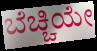
ಬೆಚ್ಚಿಯೇ